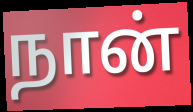
நான்